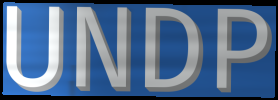
UNDP